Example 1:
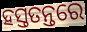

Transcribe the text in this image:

ହସ୍ତତନ୍ତରେ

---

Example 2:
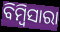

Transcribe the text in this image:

ବିମ୍ବିସାରା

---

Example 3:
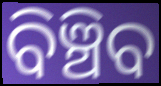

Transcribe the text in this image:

ବିଞ୍ଚିବ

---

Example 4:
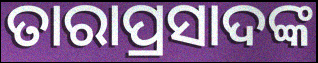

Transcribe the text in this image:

ତାରାପ୍ରସାଦଙ୍କ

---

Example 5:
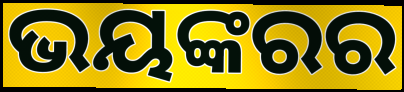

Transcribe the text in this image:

ଭୟଙ୍କରର